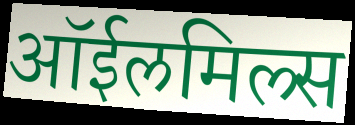
ऑईलमिल्स